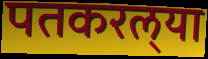
पतकरल्या